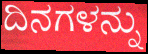
ದಿನಗಳನ್ನು